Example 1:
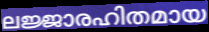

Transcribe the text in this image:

ലജ്ജാരഹിതമായ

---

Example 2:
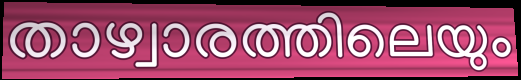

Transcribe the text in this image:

താഴ്വാരത്തിലെയും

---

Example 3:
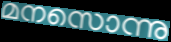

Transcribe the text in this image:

മനസൊന്നു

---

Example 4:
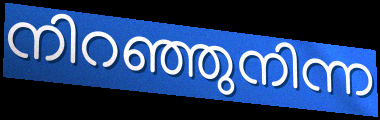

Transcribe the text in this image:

നിറഞ്ഞുനിന്ന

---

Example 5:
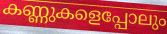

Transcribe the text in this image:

കണ്ണുകളെപ്പോലും